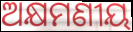
ଅକ୍ଷମଣୀୟ